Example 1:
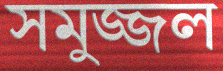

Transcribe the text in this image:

সমুজ্জল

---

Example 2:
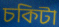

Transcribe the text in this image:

চকিটা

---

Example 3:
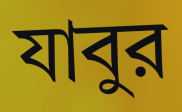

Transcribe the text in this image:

যাবুর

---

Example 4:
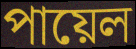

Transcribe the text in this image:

পায়েল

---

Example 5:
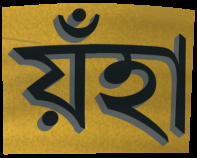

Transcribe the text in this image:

য়ঁহা